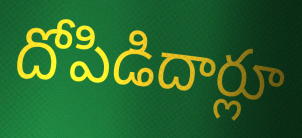
దోపిడిదార్లూ